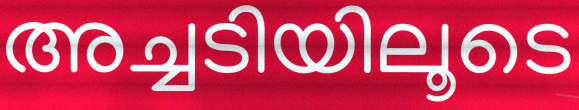
അച്ചടിയിലൂടെ